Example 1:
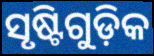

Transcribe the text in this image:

ସୃଷ୍ଟିଗୁଡ଼ିକ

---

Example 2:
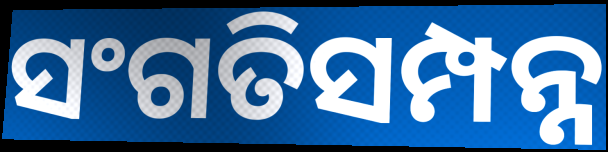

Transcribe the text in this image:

ସଂଗତିସମ୍ପନ୍ନ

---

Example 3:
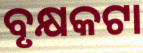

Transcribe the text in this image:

ବୃକ୍ଷକଟା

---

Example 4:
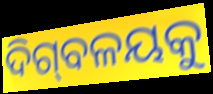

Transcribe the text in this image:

ଦିଗ୍‌ବଳୟକୁ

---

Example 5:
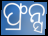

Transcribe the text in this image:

ଫ୍ରନ୍ସ